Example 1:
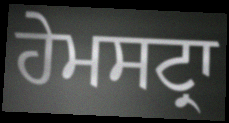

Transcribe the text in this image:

ਹੇਮਸਟ੍ਰਾ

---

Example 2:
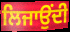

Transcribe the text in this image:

ਲਿਜਾਉਂਦੀ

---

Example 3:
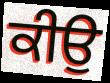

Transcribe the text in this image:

ਕੀਉ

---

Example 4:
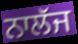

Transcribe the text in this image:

ਨਾਲੱਜ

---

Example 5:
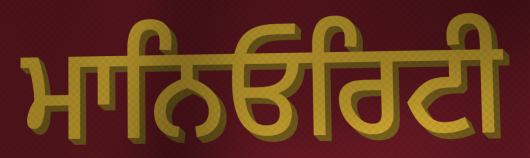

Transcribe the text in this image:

ਮਾਨਿਓਰਿਟੀ